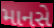
માનસે